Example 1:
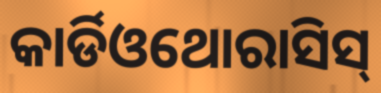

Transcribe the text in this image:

କାର୍ଡିଓଥୋରାସିସ୍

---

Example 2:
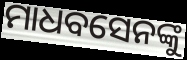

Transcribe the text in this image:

ମାଧବସେନଙ୍କୁ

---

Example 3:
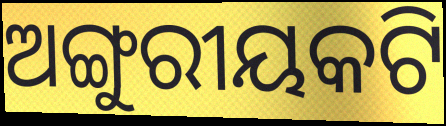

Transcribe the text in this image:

ଅଙ୍ଗୁରୀୟକଟି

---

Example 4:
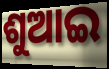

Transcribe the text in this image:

ଶୁଆଇ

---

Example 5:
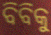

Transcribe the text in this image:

ବିବିକୁ